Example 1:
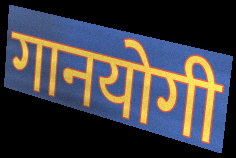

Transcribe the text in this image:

गानयोगी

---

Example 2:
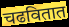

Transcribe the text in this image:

चढवितात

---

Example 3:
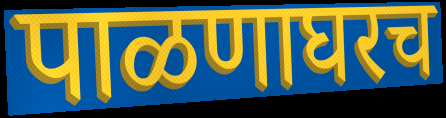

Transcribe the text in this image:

पाळणाघरच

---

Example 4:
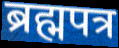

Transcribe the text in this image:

ब्रह्मपत्र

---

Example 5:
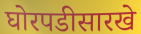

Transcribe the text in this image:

घोरपडीसारखे